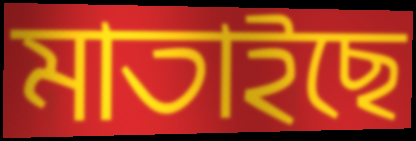
মাতাইছে